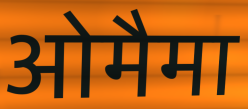
ओमैमा